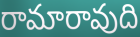
రామారావుది